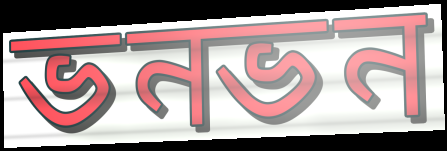
ভনভন